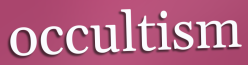
occultism